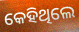
କେହିଥିଲେ